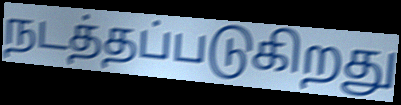
நடத்தப்படுகிறது